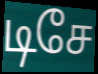
டிசே